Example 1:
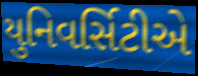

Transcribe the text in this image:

યુનિવર્સિટીએ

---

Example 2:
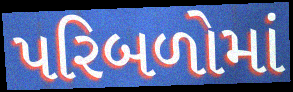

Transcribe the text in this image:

પરિબળોમાં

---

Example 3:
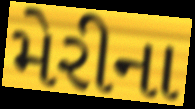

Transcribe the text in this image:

મેરીના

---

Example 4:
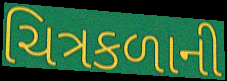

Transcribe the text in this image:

ચિત્રકળાની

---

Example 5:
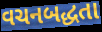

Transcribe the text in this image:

વચનબદ્ધતા